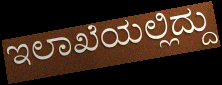
ಇಲಾಖೆಯಲ್ಲಿದ್ದು